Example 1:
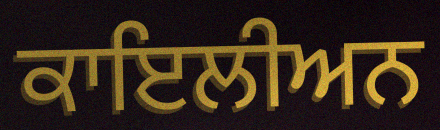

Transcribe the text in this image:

ਕਾਇਲੀਅਨ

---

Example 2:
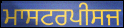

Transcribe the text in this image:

ਮਾਸਟਰਪੀਸਜ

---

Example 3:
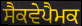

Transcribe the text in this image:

ਸੈਕਵੇਪੈਮਕ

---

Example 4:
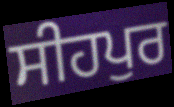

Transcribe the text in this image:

ਸੀਹਪੁਰ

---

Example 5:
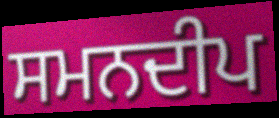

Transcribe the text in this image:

ਸਮਨਦੀਪ